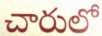
చారులో